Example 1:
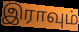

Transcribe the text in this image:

இராவும்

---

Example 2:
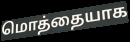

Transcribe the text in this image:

மொத்தையாக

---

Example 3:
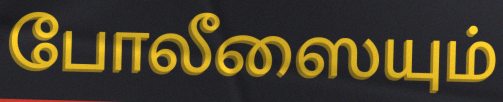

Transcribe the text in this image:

போலீஸையும்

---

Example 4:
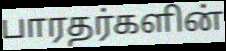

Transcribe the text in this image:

பாரதர்களின்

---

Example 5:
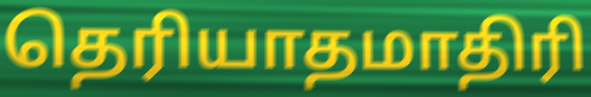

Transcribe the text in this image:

தெரியாதமாதிரி